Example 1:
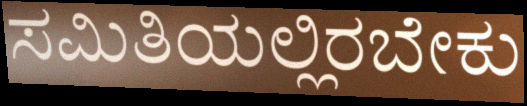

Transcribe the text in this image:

ಸಮಿತಿಯಲ್ಲಿರಬೇಕು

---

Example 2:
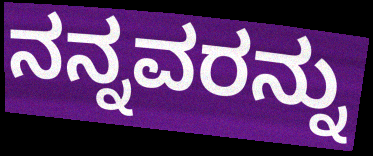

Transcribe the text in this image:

ನನ್ನವರನ್ನು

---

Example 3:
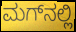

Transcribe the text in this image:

ಮಗ್‌ನಲ್ಲಿ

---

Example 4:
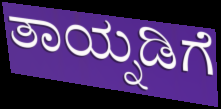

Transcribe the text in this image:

ತಾಯ್ನಡಿಗೆ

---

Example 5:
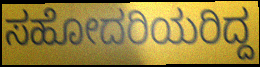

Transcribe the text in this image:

ಸಹೋದರಿಯರಿದ್ದ